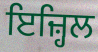
ਇਜ਼੍ਹਿਲ